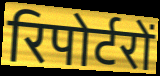
रिपोर्टरों